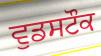
ਵੁਡਸਟੌਕ